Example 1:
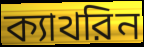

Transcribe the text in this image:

ক্যাথরিন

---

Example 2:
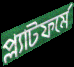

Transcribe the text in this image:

প্ল্যাটফর্মে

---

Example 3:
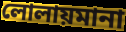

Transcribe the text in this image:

লোলায়মানা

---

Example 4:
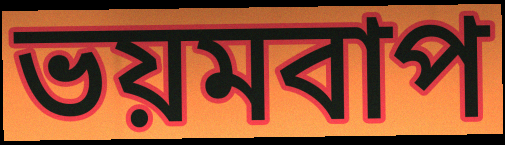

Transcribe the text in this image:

ভয়মবাপ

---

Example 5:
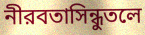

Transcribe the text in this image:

নীরবতাসিন্ধুতলে